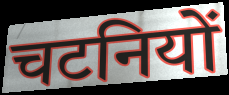
चटनियों